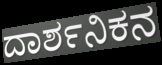
ದಾರ್ಶನಿಕನ